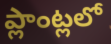
ప్లాంట్లలో